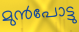
മുൻപോട്ടു